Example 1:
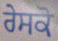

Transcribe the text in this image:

ਰੇਸਕੋ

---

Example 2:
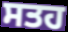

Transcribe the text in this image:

ਸਤਹ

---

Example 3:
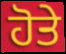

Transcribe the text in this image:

ਹੋਤੇ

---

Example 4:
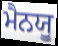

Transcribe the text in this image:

ਮੈਨਯੂ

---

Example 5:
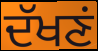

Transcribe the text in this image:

ਦੱਖਣਂ